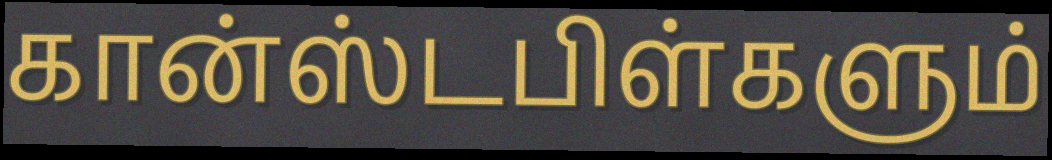
கான்ஸ்டபிள்களும்